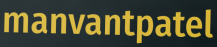
manvantpatel